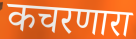
कचरणारा